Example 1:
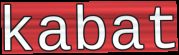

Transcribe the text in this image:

kabat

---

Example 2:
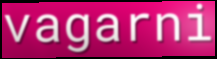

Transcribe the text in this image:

vagarni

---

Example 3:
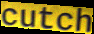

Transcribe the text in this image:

cutch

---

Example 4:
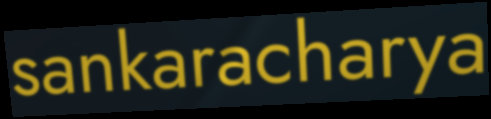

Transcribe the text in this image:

sankaracharya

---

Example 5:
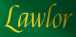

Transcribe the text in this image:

Lawlor